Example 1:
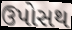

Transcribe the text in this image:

ઉપોસથ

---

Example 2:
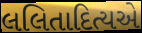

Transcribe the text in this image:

લલિતાદિત્યએ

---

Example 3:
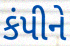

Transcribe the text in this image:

કંપીને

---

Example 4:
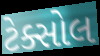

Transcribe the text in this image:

ટેક્સોલ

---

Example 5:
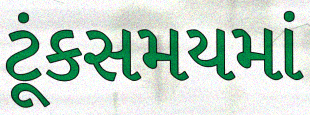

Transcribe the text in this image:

ટૂંકસમયમાં